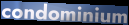
condominium